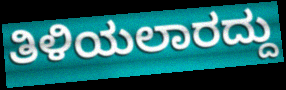
ತಿಳಿಯಲಾರದ್ದು